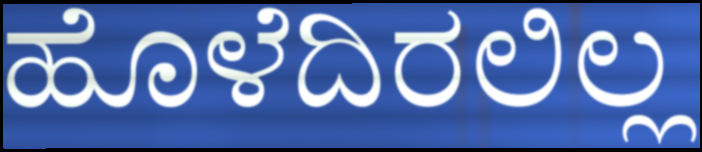
ಹೊಳೆದಿರಲಿಲ್ಲ